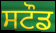
ਸਟੌਡ